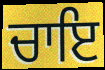
ਚਾਇ